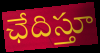
ఛేదిస్తూ